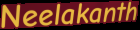
Neelakanth